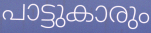
പാട്ടുകാരും